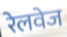
रेलवेज